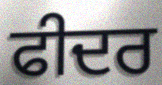
ਫੀਦਰ